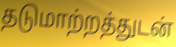
தடுமாற்றத்துடன்